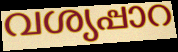
വശ്യപ്പാറ